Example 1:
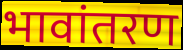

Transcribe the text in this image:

भावांतरण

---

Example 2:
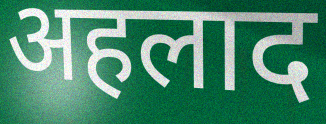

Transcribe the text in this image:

अहलाद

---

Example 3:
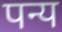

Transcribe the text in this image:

पन्य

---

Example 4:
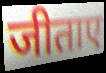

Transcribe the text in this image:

जीताए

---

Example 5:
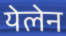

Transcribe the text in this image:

येलेन